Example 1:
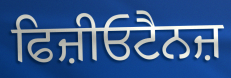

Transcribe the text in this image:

ਫਿਜ਼ੀਓਟੈਨਜ਼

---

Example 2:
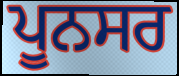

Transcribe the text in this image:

ਪੂਨਸਰ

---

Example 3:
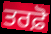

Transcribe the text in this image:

ਤਰਫ਼ੋ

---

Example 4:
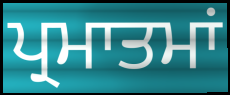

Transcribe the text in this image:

ਪ੍ਰਮਾਤਮਾਂ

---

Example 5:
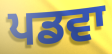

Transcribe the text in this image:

ਪਡਵਾ